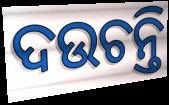
ଦଉଚନ୍ତି